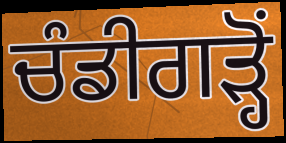
ਚੰਡੀਗੜ੍ਹੋਂ